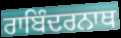
ਰਾਬਿੰਦਰਨਾਥ